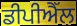
ਡੀਪੀਐੱਲ